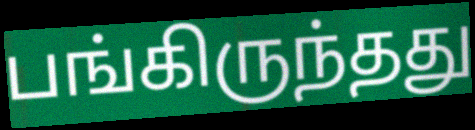
பங்கிருந்தது